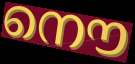
നൌ